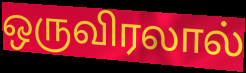
ஒருவிரலால்